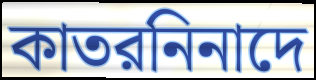
কাতরনিনাদে